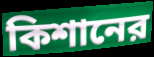
কিশানের